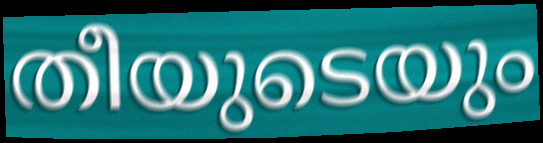
തീയുടെയും